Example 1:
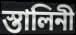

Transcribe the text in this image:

স্তালিনী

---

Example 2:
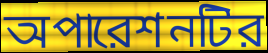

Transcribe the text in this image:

অপারেশনটির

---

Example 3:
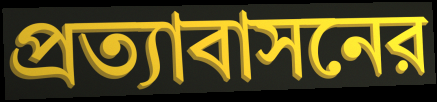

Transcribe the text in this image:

প্রত্যাবাসনের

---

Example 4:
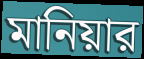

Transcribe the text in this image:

মানিয়ার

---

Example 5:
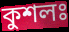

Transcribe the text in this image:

কুশলঃ